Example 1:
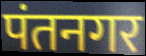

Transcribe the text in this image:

पंतनगर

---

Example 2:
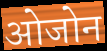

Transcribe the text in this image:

ओजोन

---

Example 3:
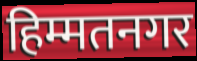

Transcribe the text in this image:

हिम्‍मतनगर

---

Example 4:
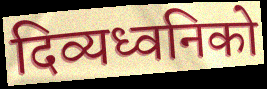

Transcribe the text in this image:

दिव्यध्वनिको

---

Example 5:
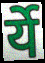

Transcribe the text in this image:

र्ये